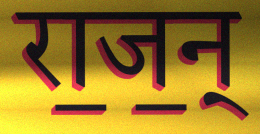
रा॒ज॒न्